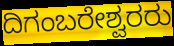
ದಿಗಂಬರೇಶ್ವರರು